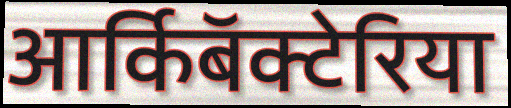
आर्किबॅक्टेरिया